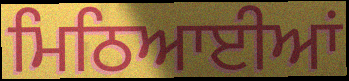
ਮਿਠਿਆਈਆਂ